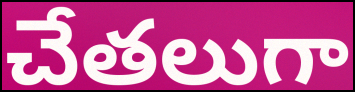
చేతలుగా